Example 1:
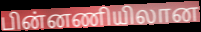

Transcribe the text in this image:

பின்னணியிலான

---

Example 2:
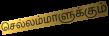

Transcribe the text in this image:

செல்லம்மாளுக்கும்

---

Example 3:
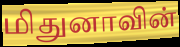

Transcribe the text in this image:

மிதுனாவின்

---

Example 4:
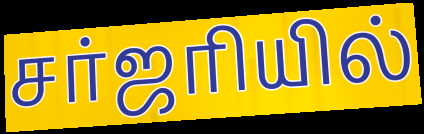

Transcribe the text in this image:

சர்ஜரியில்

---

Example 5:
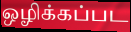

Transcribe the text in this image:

ஒழிக்கப்பட